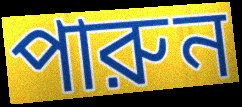
পারুন